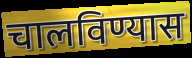
चालविण्यास